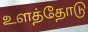
உளத்தோடு